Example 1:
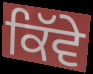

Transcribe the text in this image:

ਕਿੱਵੇ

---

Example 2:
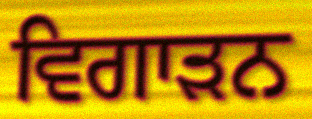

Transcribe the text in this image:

ਵਿਗਾੜਨ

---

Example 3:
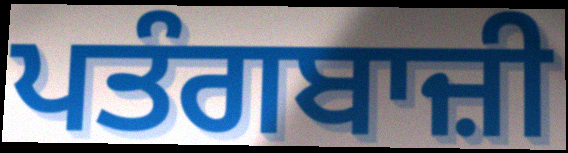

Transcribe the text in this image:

ਪਤੰਗਬਾਜ਼ੀ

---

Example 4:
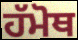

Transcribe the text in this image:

ਹੱਮੋਥ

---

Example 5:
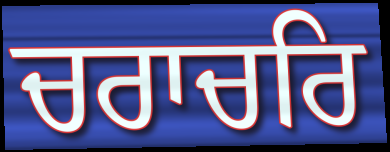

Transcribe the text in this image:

ਚਰਾਚਰਿ